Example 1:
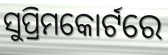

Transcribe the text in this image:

ସୁପ୍ରିମକୋର୍ଟରେ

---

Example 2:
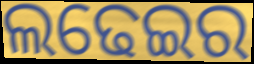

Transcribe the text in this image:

ଲଢେଇର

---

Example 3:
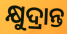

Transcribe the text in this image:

କ୍ଷୁଦ୍ରାନ୍ତ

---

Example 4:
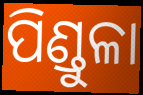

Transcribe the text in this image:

ପିଣ୍ଡୁଳା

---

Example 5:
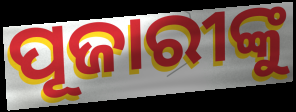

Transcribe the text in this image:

ପୂଜାରୀଙ୍କୁ